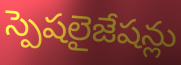
స్పెషలైజేషన్లు